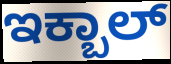
ಇಕ್ಬಾಲ್